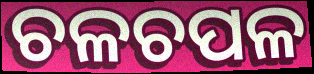
ଚଳଚପଳ